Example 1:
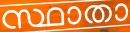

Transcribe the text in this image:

സ്ഥാതാ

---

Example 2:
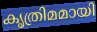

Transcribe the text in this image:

കൃത്രിമമായി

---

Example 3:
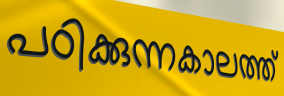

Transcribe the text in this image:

പഠിക്കുന്നകാലത്ത്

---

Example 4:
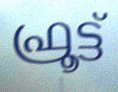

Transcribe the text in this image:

ഫ്രൂട്ട്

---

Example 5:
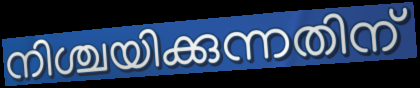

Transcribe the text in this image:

നിശ്ചയിക്കുന്നതിന്